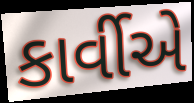
કાર્વીએ